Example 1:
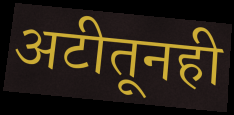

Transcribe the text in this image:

अटीतूनही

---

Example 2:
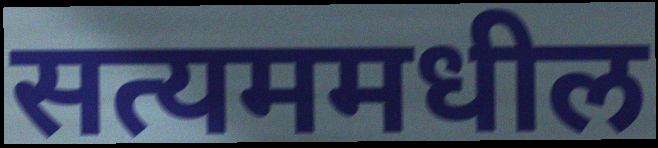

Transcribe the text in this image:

सत्यममधील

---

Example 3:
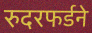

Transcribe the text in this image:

रुदरफर्डने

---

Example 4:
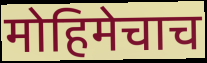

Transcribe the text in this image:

मोहिमेचाच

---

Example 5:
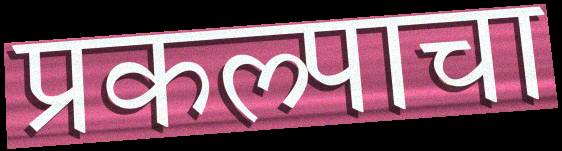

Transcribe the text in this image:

प्रकल्पाचा